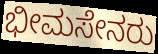
ಭೀಮಸೇನರು